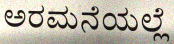
ಅರಮನೆಯಲ್ಲೆ